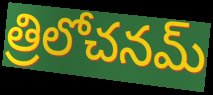
త్రిలోచనమ్